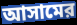
আসামের